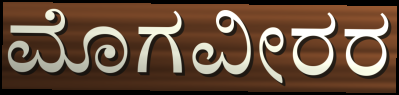
ಮೊಗವೀರರ